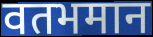
वतभमान